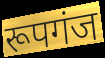
रूपगंज